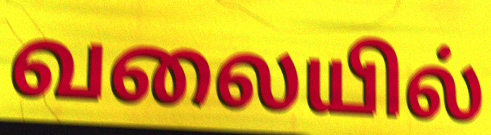
வலையில்